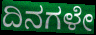
ದಿನಗಳೇ